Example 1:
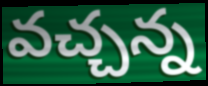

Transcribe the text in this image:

వచ్చన్న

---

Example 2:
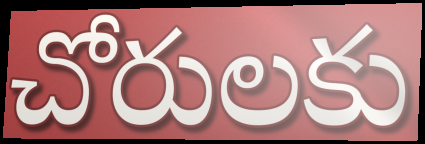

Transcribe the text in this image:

చోరులకు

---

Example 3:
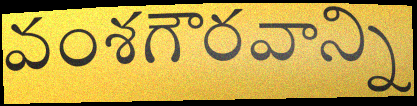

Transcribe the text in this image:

వంశగౌరవాన్ని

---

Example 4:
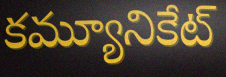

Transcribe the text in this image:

కమ్యూనికేట్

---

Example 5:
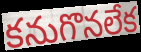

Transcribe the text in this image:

కనుగొనలేక